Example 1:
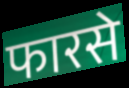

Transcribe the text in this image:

फारसे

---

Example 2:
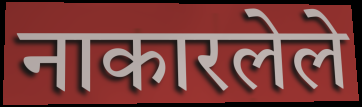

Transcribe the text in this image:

नाकारलेले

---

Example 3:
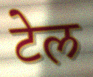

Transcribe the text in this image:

टेल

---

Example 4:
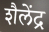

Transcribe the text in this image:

शैलेंद्र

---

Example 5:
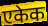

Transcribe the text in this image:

एकेक